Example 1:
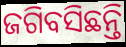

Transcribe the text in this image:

ଜଗିବସିଛନ୍ତି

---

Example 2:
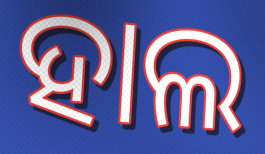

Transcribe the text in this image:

ହାଲ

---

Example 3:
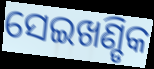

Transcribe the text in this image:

ସେଇଖଣ୍ଡିକ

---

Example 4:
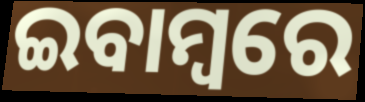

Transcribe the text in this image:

ଇବାମ୍ବରେ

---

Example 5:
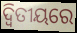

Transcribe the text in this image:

ଦ୍ୱିତୀୟରେ